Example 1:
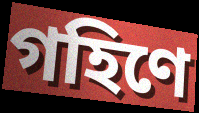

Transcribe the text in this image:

গহিণে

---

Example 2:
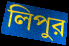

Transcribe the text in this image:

লিপুর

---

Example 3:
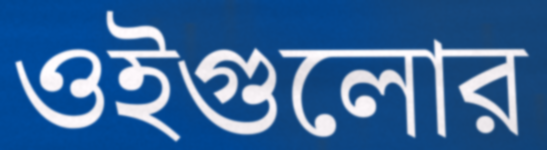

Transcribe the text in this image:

ওইগুলোর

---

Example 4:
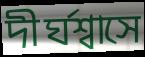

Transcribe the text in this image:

দীর্ঘশ্বাসে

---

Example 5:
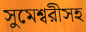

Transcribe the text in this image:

সুমেশ্বরীসহ